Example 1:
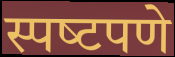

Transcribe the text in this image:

स्‍पष्‍टपणे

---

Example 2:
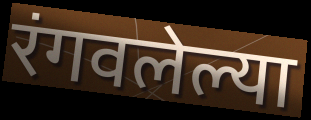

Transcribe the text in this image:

रंगवलेल्या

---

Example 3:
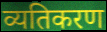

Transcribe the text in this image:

व्यतिकरण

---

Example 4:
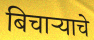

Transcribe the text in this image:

बिचाऱ्याचे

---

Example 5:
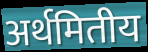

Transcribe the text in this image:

अर्थमितीय